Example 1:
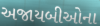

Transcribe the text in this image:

અજાયબીઓના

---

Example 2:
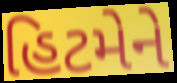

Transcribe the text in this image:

હિટમેને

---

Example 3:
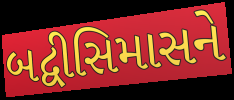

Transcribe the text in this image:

બદ્વીસિમાસને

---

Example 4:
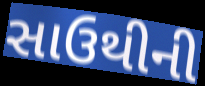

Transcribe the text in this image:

સાઉથીની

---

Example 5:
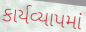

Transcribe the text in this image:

કાર્યવ્યાપમાં